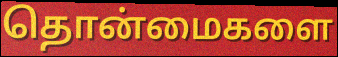
தொன்மைகளை